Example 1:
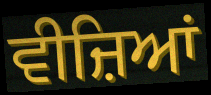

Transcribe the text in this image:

ਵੀਜ਼ਿਆਂ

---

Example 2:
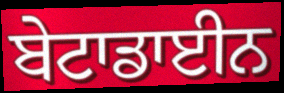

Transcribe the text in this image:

ਬੇਟਾਡਾਈਨ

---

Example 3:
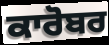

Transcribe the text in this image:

ਕਾਰੋਬਰ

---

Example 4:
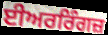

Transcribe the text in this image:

ਈਅਰਰਿੰਗਜ਼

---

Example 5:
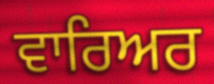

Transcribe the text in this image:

ਵਾਰਿਅਰ